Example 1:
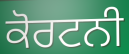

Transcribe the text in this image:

ਕੋਰਟਨੀ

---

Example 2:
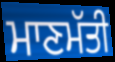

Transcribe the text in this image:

ਮਾਣਮੱਤੀ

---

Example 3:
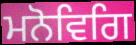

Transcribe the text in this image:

ਮਨੋਵਿਗਿ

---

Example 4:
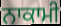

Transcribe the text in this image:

ਨਾਕਾਮੀ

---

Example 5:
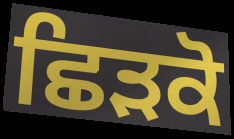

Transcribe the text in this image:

ਛਿੜਕੋ